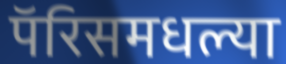
पॅरिसमधल्या